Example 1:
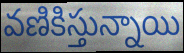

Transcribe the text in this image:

వణికిస్తున్నాయి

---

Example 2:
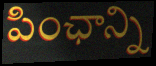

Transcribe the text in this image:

పింఛాన్ని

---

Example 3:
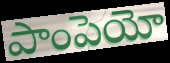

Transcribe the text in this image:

పాంపెయో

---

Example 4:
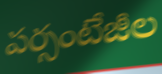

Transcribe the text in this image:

పర్సంటేజీల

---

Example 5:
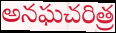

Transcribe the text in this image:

అనఘచరిత్ర